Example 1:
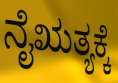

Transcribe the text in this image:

ನೈಋತ್ಯಕ್ಕೆ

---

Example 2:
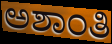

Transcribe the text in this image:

ಅಶಾಂತಿ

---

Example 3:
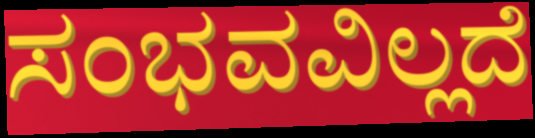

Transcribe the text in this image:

ಸಂಭವವಿಲ್ಲದೆ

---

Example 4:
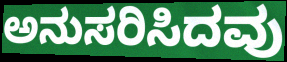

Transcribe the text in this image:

ಅನುಸರಿಸಿದವು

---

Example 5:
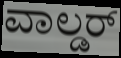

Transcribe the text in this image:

ವಾಲ್ಡರ್